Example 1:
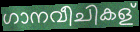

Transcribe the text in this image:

ഗാനവീചികള്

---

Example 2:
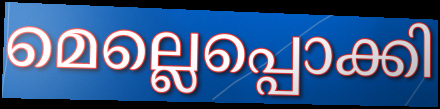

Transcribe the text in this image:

മെല്ലെപ്പൊക്കി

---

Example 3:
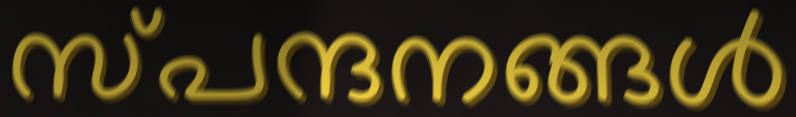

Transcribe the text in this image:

സ്പന്ദനങ്ങൾ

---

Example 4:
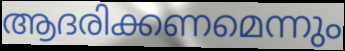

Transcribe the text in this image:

ആദരിക്കണമെന്നും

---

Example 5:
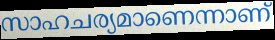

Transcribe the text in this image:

സാഹചര്യമാണെന്നാണ്